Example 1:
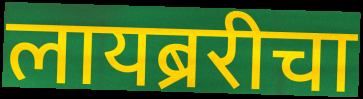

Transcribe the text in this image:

लायब्ररीचा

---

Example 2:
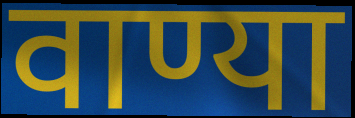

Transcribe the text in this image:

वाण्या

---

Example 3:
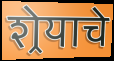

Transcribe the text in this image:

श्रेयाचे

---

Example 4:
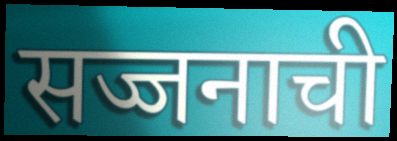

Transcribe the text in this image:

सज्जनाची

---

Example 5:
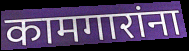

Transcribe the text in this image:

कामगारांना